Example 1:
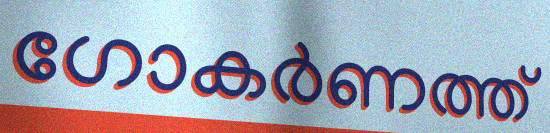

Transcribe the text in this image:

ഗോകർണത്ത്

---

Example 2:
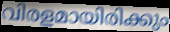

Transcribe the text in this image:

വിരളമായിരിക്കും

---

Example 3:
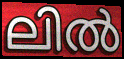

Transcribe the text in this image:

ലിൽ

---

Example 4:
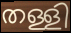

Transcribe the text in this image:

തള്ളി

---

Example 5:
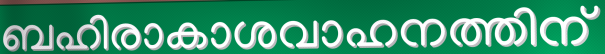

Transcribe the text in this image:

ബഹിരാകാശവാഹനത്തിന്